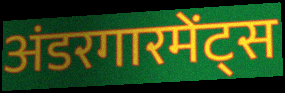
अंडरगारमेंट्स